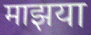
माझया